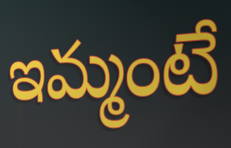
ఇమ్మంటే